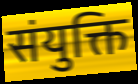
संयुक्ति